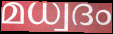
മധ്വദം